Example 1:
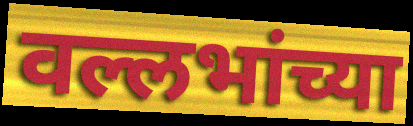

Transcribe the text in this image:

वल्लभांच्या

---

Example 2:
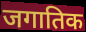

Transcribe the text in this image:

जगातिक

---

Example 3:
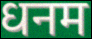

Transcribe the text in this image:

धनम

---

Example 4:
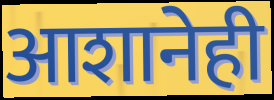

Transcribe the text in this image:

आशानेही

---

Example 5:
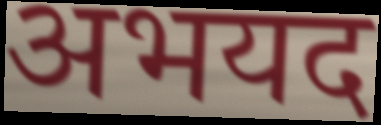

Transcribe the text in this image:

अभयद